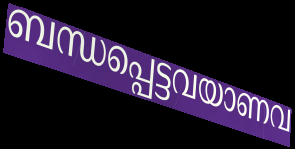
ബന്ധപ്പെട്ടവയാണവ